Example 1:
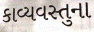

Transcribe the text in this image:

કાવ્યવસ્તુના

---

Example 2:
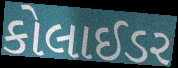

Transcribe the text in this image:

કોલાઈડર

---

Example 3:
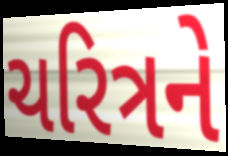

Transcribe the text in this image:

ચરિત્રને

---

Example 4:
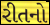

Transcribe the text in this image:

રીતનો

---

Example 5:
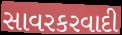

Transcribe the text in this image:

સાવરકરવાદી